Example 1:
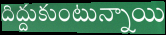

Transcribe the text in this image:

దిద్దుకుంటున్నాయి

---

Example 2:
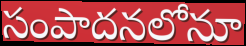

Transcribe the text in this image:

సంపాదనలోనూ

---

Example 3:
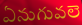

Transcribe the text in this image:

ఏనుగువలె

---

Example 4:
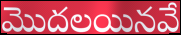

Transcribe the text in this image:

మొదలయినవే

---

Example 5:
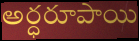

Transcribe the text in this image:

అర్ధరూపాయి